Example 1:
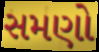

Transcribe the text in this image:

સમણો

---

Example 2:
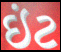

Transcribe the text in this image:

ઇંટ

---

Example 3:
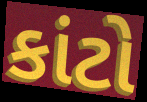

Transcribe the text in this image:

કાંટો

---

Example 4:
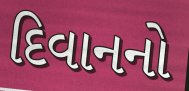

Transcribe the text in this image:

દિવાનનો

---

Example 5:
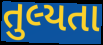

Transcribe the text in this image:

તુલ્યતા